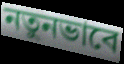
নতুনভাবে